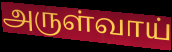
அருள்வாய்